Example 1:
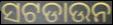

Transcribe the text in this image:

ସଟଡାଉନ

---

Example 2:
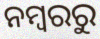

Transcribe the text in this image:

ନମ୍ବରରୁ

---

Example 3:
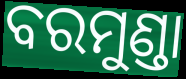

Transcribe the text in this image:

ବରମୁଣ୍ଡା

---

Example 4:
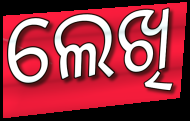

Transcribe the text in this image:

ଲେଖି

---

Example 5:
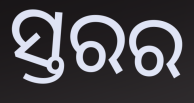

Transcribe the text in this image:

ସ୍ତରର